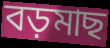
বড়মাছ